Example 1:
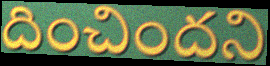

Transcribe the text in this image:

దించిందని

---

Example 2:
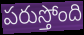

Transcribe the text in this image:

పరుస్తోంది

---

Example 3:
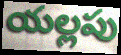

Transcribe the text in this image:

యల్లపు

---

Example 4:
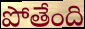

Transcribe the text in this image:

పోతేంది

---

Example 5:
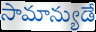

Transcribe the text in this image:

సామాన్యుడే